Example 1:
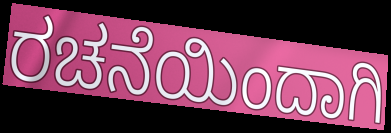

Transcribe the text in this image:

ರಚನೆಯಿಂದಾಗಿ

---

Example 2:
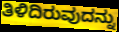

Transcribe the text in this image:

ತಿಳಿದಿರುವುದನ್ನು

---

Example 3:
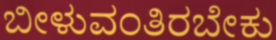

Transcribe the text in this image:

ಬೀಳುವಂತಿರಬೇಕು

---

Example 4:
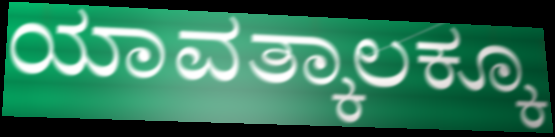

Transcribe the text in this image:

ಯಾವತ್ಕಾಲಕ್ಕೂ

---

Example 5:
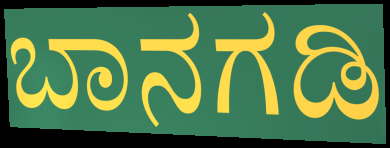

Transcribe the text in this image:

ಬಾನಗಡಿ